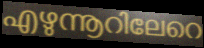
എഴുന്നൂറിലേറെ